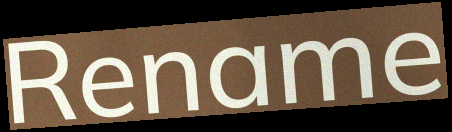
Rename